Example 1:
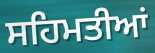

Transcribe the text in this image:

ਸਹਿਮਤੀਆਂ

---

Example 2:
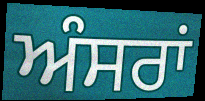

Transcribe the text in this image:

ਅੰਸਰਾਂ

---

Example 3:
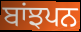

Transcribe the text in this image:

ਬਾਂਝਪਨ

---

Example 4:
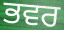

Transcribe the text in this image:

ਭਵਰ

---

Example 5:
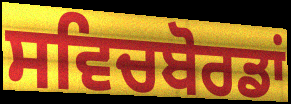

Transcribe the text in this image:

ਸਵਿਚਬੋਰਡਾਂ